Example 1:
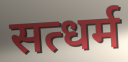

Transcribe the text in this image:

सत्धर्म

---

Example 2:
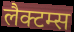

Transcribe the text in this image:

लैक्टम्स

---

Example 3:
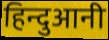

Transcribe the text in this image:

हिन्दुआनी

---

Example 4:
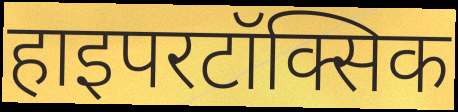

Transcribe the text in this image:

हाइपरटॉक्सिक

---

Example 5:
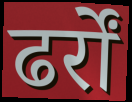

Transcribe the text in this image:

ढर्रों